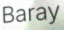
Baray